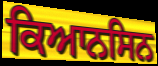
ਕਿਆਨਸਿਨ